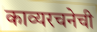
काव्यरचनेची